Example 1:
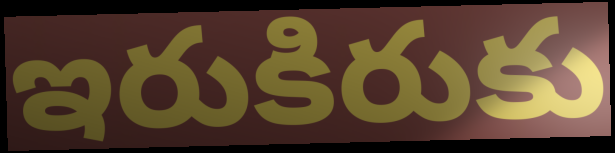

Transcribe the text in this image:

ఇరుకిరుకు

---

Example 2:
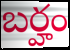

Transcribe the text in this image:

బర్హం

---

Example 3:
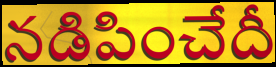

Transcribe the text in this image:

నడిపించేదీ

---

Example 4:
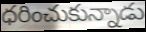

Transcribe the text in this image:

ధరించుకున్నాడు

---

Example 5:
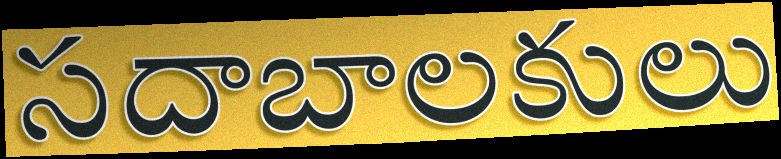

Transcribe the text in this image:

సదాబాలకులు